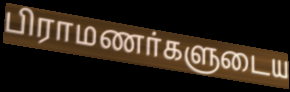
பிராமணர்களுடைய